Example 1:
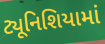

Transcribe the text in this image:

ટ્યૂનિશિયામાં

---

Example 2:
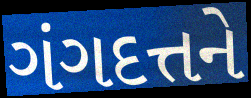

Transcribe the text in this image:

ગંગદત્તને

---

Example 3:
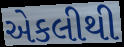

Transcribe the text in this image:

એકલીથી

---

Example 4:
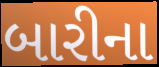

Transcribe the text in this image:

બારીના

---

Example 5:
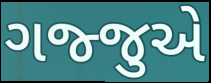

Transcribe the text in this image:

ગજ્જુએ